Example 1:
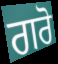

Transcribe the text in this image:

ਗਰੋ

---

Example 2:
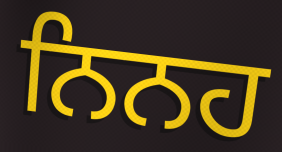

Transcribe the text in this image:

ਨਿਨਹ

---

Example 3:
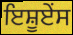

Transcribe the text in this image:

ਇਸ਼ੂਏਂਸ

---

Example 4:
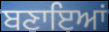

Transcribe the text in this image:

ਬਣਾਇਆਂ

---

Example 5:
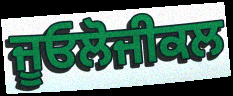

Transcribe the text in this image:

ਜੂਓਲੋਜੀਕਲ